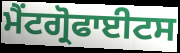
ਮੈਂਟਗ੍ਰੋਫਾਈਟਸ